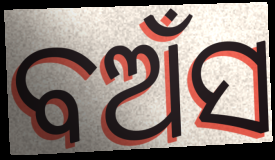
ବଅଁସ